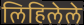
लिहिलेले